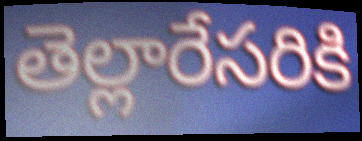
తెల్లారేసరికి